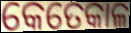
କେତେକାଳ